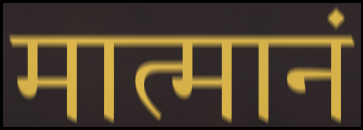
मात्मानं